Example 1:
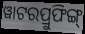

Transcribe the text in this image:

ୱାଟରପ୍ରୁଫିଙ୍ଗ୍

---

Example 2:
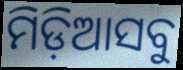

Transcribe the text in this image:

ମିଡ଼ିଆସବୁ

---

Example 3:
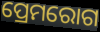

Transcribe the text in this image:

ପ୍ରେମରୋଗ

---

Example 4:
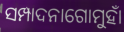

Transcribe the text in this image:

ସମ୍ପାଦନାଗୋମୁହାଁ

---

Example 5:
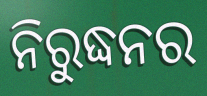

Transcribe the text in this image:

ନିରୁଦ୍ଧନର